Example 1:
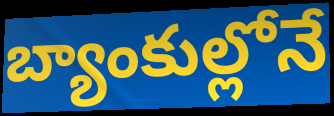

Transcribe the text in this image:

బ్యాంకుల్లోనే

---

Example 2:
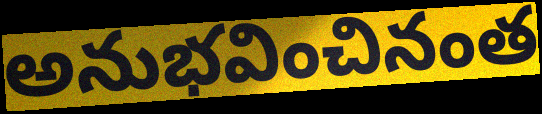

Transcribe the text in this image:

అనుభవించినంత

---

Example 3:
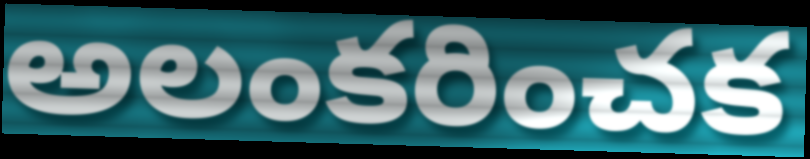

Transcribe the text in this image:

అలంకరించక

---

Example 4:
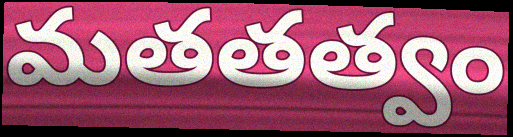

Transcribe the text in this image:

మతతత్వం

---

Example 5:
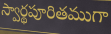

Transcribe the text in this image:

స్వార్థపూరితముగా